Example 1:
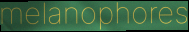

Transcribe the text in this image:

melanophores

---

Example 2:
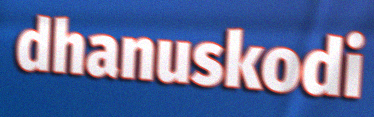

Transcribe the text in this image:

dhanuskodi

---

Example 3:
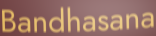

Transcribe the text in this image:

Bandhasana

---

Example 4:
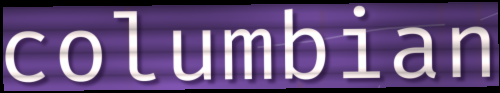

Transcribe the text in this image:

columbian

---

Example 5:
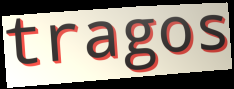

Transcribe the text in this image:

tragos